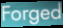
Forged